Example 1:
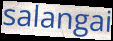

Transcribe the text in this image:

salangai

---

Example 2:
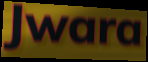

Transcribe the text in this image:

Jwara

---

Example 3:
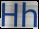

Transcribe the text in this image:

Hh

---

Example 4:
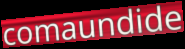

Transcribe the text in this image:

comaundide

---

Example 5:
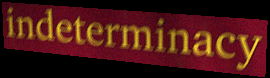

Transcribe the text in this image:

indeterminacy